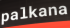
palkana